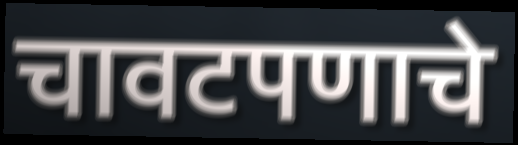
चावटपणाचे